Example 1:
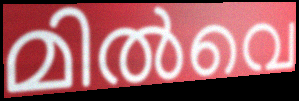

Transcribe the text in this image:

മിൽവെ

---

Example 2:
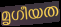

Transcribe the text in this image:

മൃഗീയത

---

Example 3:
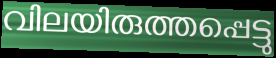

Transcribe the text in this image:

വിലയിരുത്തപ്പെട്ടു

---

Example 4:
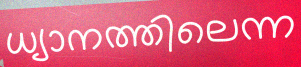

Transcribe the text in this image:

ധ്യാനത്തിലെന്ന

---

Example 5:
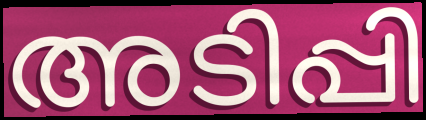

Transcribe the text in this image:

അടിപ്പി